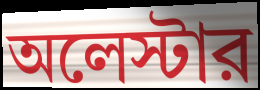
অলেস্টার